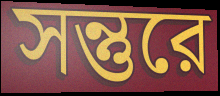
সন্তুরে